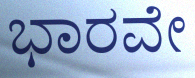
ಭಾರವೇ